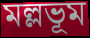
মল্লভূম